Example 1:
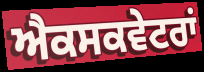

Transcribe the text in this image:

ਐਕਸਕਵੇਟਰਾਂ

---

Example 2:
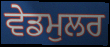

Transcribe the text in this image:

ਵੇਡਮੁਲਰ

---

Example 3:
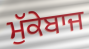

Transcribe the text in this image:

ਮੁੱਕੇਬਾਜ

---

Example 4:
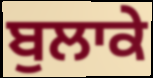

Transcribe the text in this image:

ਬੁਲਾਕੇ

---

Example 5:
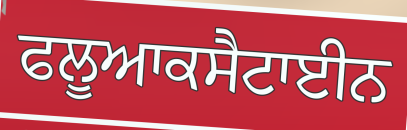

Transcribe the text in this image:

ਫਲੂਆਕਸੈਟਾਈਨ